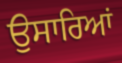
ਉਸਾਰਿਆਂ